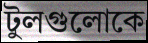
টুলগুলোকে